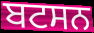
ਬਟਸਨ